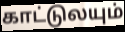
காட்டுலயும்